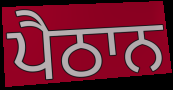
ਪੈਠਾਨ